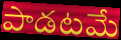
పాడటమే